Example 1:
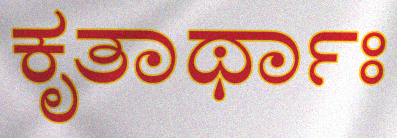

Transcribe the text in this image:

ಕೃತಾರ್ಥಾಃ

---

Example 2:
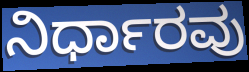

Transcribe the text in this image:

ನಿರ್ಧಾರವು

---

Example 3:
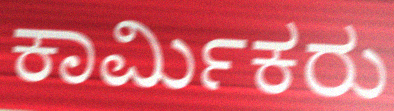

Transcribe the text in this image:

ಕಾರ್ಮಿಕರು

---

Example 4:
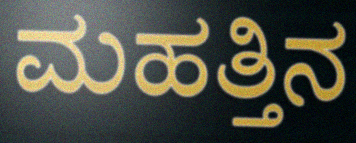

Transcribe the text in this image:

ಮಹತ್ತಿನ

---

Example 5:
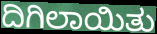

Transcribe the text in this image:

ದಿಗಿಲಾಯಿತು